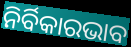
ନିର୍ବିକାରଭାବ